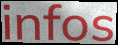
infos